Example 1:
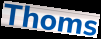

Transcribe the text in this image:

Thoms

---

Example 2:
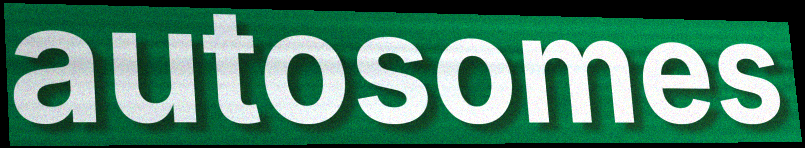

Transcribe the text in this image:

autosomes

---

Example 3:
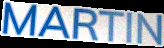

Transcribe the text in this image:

MARTIN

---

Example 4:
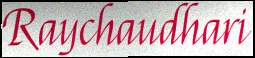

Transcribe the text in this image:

Raychaudhari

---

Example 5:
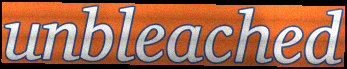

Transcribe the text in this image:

unbleached